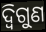
ଦ୍ୱିଗୁଣ